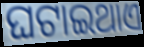
ଘଟାଇଥାଏ